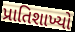
પ્રાતિશાખ્યો